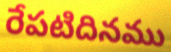
రేపటిదినము